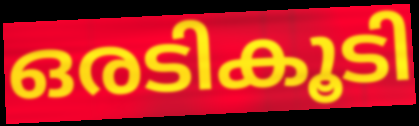
ഒരടികൂടി